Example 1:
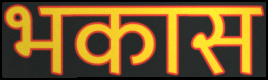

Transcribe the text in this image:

भकास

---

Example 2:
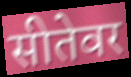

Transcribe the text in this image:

सीतेवर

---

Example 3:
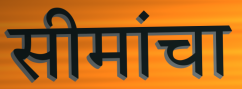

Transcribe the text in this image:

सीमांचा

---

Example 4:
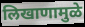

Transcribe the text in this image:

लिखाणामुळे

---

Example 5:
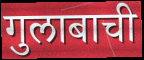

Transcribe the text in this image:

गुलाबाची